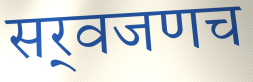
सर्वजणच